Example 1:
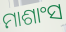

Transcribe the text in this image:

ମାଶାଂସ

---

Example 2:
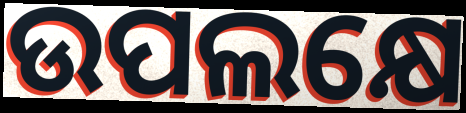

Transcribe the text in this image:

ଉପଲକ୍ଷେ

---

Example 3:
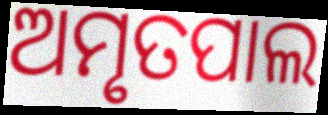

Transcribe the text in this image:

ଅମୃତପାଲ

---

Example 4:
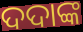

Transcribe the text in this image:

ଦଦାଙ୍କ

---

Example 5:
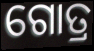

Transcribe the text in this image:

ଗୋତ୍ର